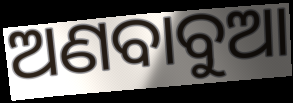
ଅଣବାବୁଆ